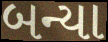
બન્યા